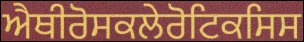
ਐਥੀਰੋਸਕਲੇਰੋਟਿਕਸਿਸ